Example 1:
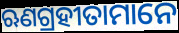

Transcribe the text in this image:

ଋଣଗ୍ରହୀତାମାନେ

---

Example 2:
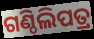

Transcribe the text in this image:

ଗଣ୍ଠିଲିପତ୍ର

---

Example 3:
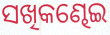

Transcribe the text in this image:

ସଖିକଣ୍ଢେଇ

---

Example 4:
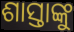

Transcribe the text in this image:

ଶାସ୍ତାଙ୍କୁ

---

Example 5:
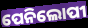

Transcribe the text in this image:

ପେନିଲୋପୀ